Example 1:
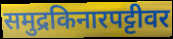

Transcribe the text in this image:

समुद्रकिनारपट्टीवर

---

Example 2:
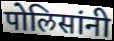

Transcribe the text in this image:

पोलिसांनी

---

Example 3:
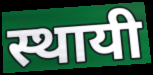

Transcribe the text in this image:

स्थायी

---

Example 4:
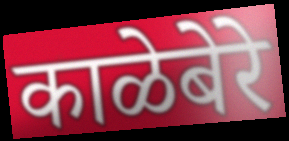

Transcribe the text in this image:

काळेबेरे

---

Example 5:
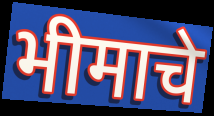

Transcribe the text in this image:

भीमाचे